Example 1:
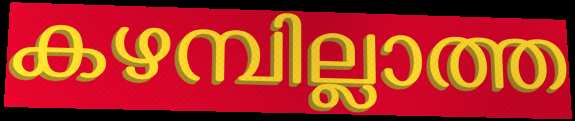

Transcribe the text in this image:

കഴമ്പില്ലാത്ത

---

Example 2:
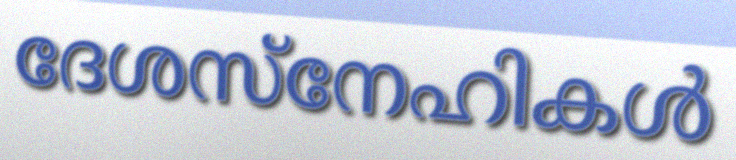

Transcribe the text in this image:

ദേശസ്നേഹികൾ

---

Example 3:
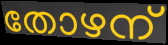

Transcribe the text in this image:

തോഴന്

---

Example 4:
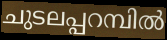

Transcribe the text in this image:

ചുടലപ്പറമ്പിൽ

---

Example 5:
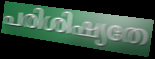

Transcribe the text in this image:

പരിശിഷ്യതേ